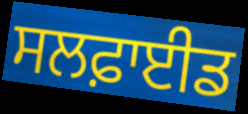
ਸਲਫ਼ਾਈਡ